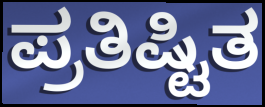
ಪ್ರತಿಷ್ಟಿತ